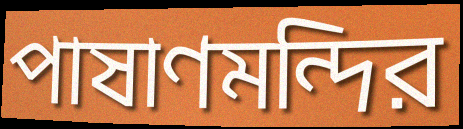
পাষাণমন্দির